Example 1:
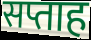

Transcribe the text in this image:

सप्ताह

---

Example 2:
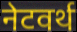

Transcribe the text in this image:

नेटवर्थ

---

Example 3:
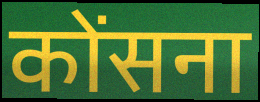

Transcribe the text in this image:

कोंसना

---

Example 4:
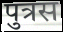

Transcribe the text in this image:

पुत्रस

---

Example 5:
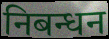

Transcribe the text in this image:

निबन्धन